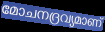
മോചനദ്രവ്യമാണ്